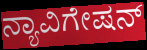
ನ್ಯಾವಿಗೇಷನ್